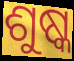
ଶୁଷ୍କ